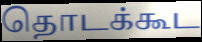
தொடக்கூட